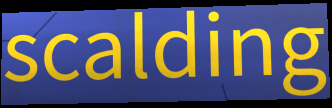
scalding